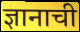
ज्ञानाची